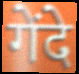
गेंदे